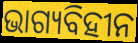
ଭାଗ୍ୟବିହୀନ